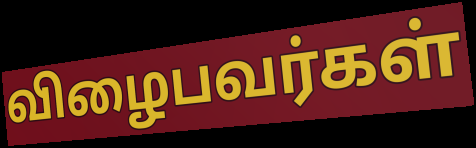
விழைபவர்கள்